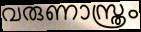
വരുണാസ്ത്രം